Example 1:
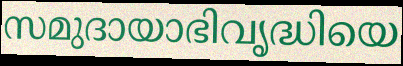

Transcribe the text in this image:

സമുദായാഭിവൃദ്ധിയെ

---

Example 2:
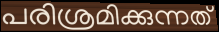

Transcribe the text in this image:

പരിശ്രമിക്കുന്നത്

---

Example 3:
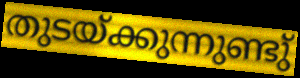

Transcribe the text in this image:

തുടയ്ക്കുന്നുണ്ടു്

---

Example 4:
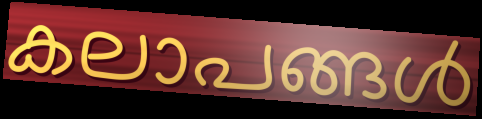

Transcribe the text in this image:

കലാപങ്ങൾ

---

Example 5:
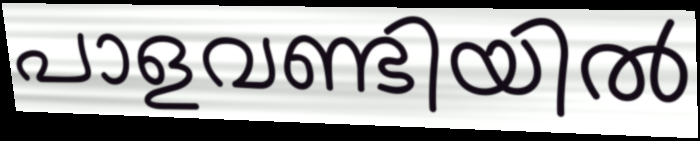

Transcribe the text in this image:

പാളവണ്ടിയിൽ